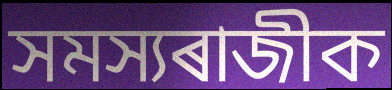
সমস্যৰাজীক